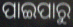
ପାଇପାରୁ